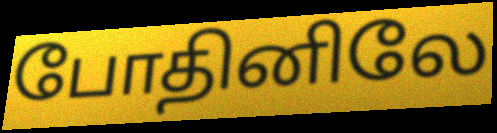
போதினிலே